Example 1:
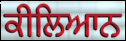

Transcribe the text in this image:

ਕੀਲਿਆਨ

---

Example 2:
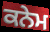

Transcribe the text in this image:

ਕਨੇਮ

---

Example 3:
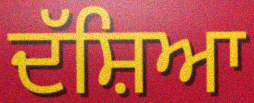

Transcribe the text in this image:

ਦੱਸ਼ਿਆ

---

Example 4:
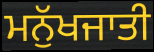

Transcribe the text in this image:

ਮਨੁੱਖਜਾਤੀ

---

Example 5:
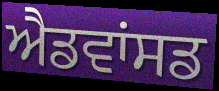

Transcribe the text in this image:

ਐਡਵਾਂਸਡ